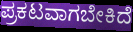
ಪ್ರಕಟವಾಗಬೇಕಿದೆ